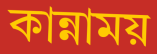
কান্নাময়